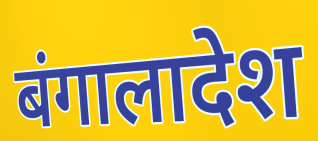
बंगालादेश